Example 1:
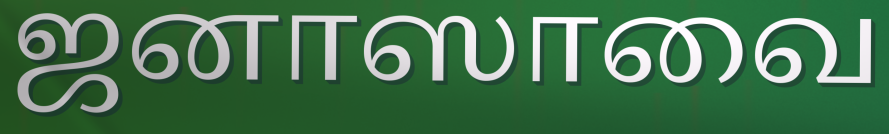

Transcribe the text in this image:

ஜனாஸாவை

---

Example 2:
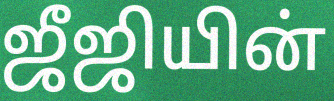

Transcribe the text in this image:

ஜீஜியின்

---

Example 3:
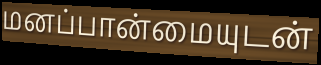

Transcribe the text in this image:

மனப்பான்மையுடன்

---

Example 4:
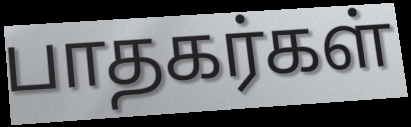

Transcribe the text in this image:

பாதகர்கள்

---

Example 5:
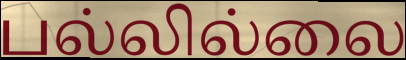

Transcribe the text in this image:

பல்லில்லை